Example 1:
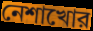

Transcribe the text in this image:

নেশাখোর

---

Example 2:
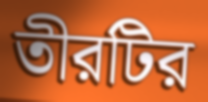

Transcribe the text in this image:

তীরটির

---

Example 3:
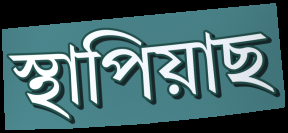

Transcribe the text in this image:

স্থাপিয়াছ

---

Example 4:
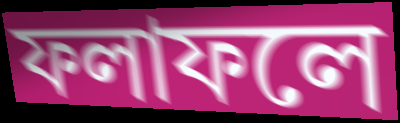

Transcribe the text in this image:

ফলাফলে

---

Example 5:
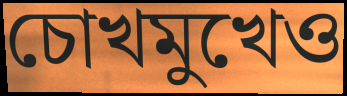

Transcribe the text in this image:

চোখমুখেও